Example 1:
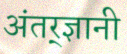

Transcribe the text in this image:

अंतर्ज्ञानी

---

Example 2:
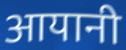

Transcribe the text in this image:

आयानी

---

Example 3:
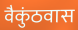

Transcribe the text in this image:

वैकुंठवास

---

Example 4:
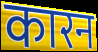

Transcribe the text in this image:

कारन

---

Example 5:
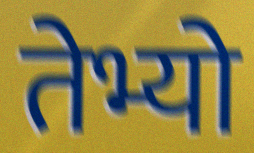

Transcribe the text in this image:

तेभ्यो